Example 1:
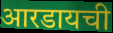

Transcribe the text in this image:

आरडायची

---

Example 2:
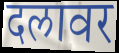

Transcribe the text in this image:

दलावर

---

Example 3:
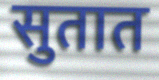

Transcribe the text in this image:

सुतात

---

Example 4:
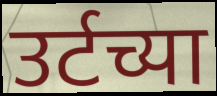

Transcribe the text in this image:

उर्टच्या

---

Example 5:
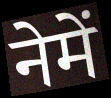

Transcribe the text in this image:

नेमें